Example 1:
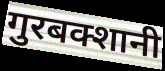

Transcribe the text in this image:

गुरबक्शानी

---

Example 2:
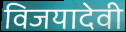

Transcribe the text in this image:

विजयादेवी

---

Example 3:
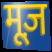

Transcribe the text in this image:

मूज़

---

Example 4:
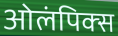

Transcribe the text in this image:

ओलंपिक्‍स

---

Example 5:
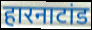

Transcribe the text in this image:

हारनाटांड